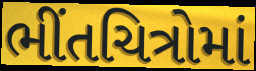
ભીંતચિત્રોમાં